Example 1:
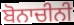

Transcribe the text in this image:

ਬੋਨਾਚੀਨੀ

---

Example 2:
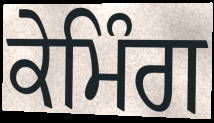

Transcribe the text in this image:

ਕੇਮਿੰਗ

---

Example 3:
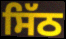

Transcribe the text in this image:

ਸਿੱਠ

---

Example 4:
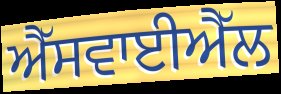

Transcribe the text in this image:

ਐੱਸਵਾਈਐੱਲ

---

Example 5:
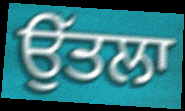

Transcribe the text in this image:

ਉੱਤਲਾ